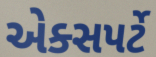
એક્સપર્ટે